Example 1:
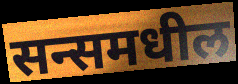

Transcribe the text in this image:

सन्समधील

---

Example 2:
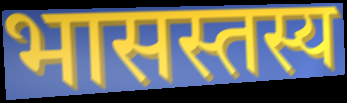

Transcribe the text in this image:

भासस्तस्य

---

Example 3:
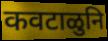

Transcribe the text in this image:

कवटाळुनि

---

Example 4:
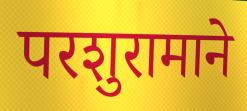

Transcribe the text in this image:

परशुरामाने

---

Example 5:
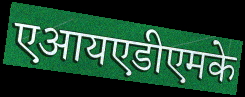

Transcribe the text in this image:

एआयएडीएमके